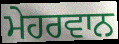
ਮੇਹਰਵਾਨ